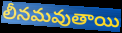
లీనమవుతాయి